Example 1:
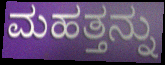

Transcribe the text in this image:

ಮಹತ್ತನ್ನು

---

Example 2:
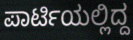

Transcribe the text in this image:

ಪಾರ್ಟಿಯಲ್ಲಿದ್ದ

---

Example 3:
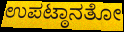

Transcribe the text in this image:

ಉಪಟ್ಠಾನತೋ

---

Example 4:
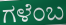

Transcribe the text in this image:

ಗಳೆಂಬ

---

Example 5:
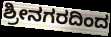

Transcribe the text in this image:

ಶ್ರೀನಗರದಿಂದ